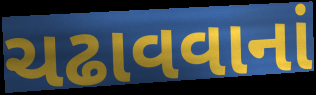
ચઢાવવાનાં